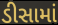
ડીસામાં